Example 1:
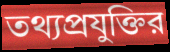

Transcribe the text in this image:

তথ্যপ্রযুক্তির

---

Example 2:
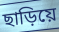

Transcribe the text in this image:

ছাড়িয়ে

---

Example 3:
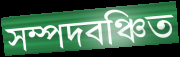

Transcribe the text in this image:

সম্পদবঞ্চিত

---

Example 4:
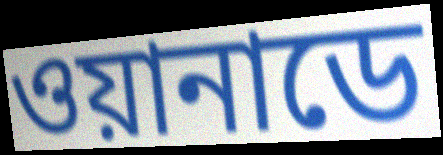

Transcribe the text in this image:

ওয়ানাডে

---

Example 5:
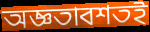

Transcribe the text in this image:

অজ্ঞতাবশতই